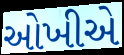
ઓખીએ